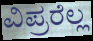
ವಿಪ್ರರೆಲ್ಲ